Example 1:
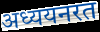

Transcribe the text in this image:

अध्ययनरत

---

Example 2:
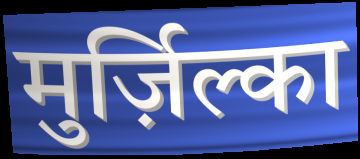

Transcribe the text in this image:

मुर्ज़िल्का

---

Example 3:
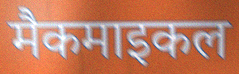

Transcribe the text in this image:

मैकमाइकल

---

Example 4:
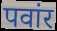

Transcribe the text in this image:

पवांर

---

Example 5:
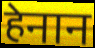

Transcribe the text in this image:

हेनान